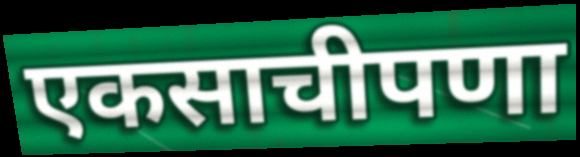
एकसाचीपणा